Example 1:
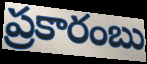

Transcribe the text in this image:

ప్రకారంబు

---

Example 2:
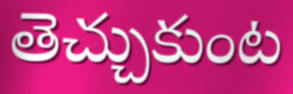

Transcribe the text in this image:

తెచ్చుకుంట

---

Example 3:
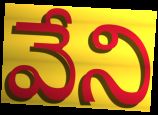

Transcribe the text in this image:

వేని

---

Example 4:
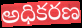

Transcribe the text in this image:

అధికరణ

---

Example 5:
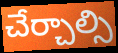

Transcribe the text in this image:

చేర్చాల్సి